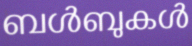
ബൾബുകൾ